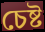
চেষ্ট